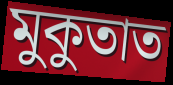
মুকুতাত